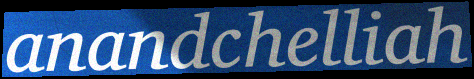
anandchelliah